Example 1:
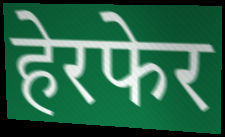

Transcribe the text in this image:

हेरफेर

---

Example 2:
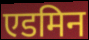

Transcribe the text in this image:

एडमिन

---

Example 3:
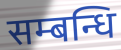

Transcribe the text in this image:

सम्बन्धि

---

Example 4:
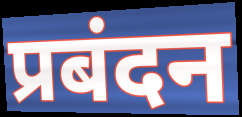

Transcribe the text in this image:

प्रबंदन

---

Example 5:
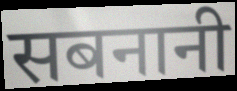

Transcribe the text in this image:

सबनानी